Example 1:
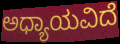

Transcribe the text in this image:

ಅಧ್ಯಾಯವಿದೆ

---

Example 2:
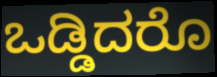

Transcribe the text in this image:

ಒಡ್ಡಿದರೊ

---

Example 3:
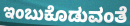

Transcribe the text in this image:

ಇಂಬುಕೊಡುವಂತೆ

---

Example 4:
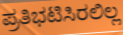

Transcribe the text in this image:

ಪ್ರತಿಭಟಿಸಿರಲಿಲ್ಲ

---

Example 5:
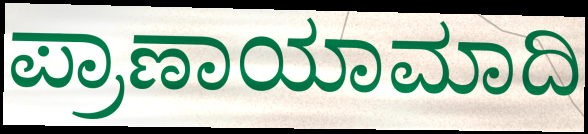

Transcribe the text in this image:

ಪ್ರಾಣಾಯಾಮಾದಿ